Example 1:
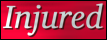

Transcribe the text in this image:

Injured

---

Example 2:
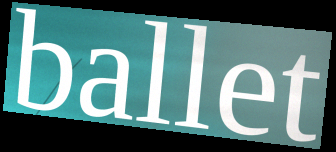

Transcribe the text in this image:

ballet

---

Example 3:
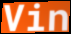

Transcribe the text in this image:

Vin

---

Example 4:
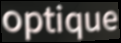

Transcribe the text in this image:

optique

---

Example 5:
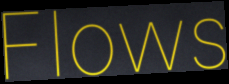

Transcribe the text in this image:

Flows